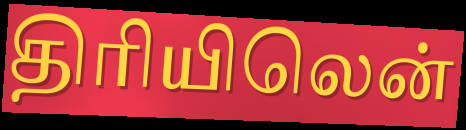
திரியிலென்